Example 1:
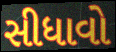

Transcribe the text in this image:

સીધાવો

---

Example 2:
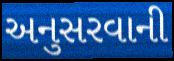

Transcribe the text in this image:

અનુસરવાની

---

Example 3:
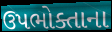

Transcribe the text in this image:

ઉપભોક્તાના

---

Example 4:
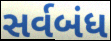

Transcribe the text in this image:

સર્વબંધ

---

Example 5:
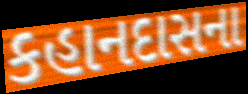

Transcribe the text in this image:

કહાનદાસના